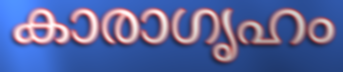
കാരാഗൃഹം